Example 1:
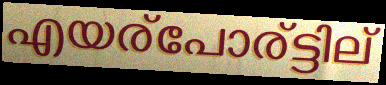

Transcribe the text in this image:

എയര്പോര്ട്ടില്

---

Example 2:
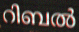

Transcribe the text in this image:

റിബൽ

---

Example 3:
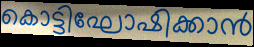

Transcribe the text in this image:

കൊട്ടിഘോഷിക്കാൻ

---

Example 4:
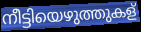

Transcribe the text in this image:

നീട്ടിയെഴുത്തുകള്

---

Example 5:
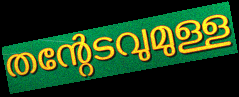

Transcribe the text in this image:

തന്റേടവുമുള്ള